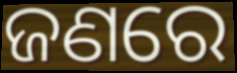
ଜଣରେ